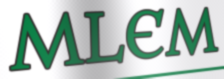
MLEM